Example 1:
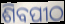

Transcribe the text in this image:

ଶିବପୀଠ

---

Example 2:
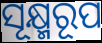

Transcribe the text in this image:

ସୂକ୍ଷ୍ମରୂପ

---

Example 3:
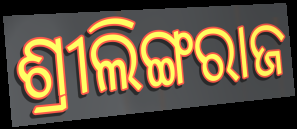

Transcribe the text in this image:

ଶ୍ରୀଲିଙ୍ଗରାଜ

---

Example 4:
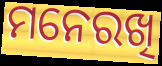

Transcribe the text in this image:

ମନେରଖି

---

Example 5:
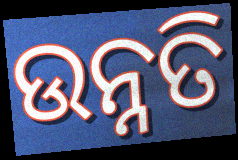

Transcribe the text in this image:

ଉନ୍ନତି